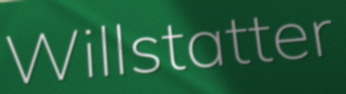
Willstatter